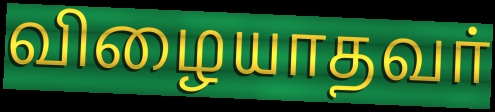
விழையாதவர்